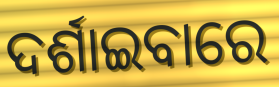
ଦର୍ଶାଇବାରେ